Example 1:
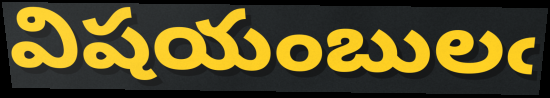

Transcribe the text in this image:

విషయంబులఁ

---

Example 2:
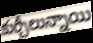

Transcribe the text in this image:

కుర్చీలున్నాయి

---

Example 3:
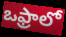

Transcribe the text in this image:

ఒఫ్రాలో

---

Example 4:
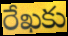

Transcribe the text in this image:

రేఖకు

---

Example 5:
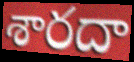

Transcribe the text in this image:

శారదా